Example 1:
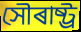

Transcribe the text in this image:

সৌৰাষ্ট্ৰ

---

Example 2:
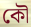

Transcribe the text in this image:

কৌ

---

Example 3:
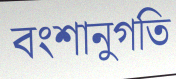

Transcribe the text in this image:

বংশানুগতি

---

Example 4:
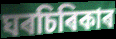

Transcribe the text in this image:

ঘৰচিৰিকাৰ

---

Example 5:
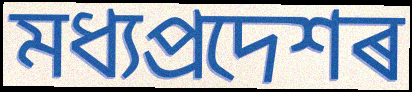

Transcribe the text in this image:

মধ্যপ্ৰদেশৰ